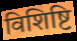
विशिष्टि